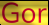
Gor